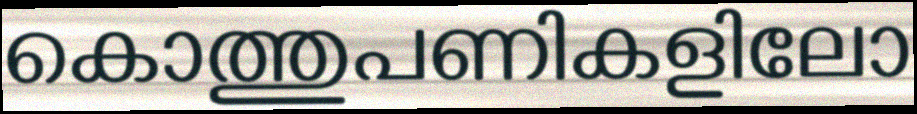
കൊത്തുപണികളിലോ